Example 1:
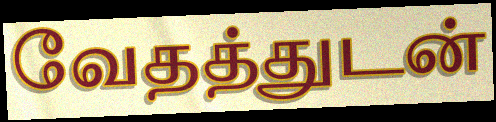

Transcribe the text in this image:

வேதத்துடன்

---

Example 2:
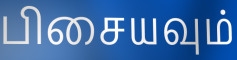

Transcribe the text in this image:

பிசையவும்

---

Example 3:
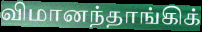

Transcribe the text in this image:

விமானந்தாங்கிக்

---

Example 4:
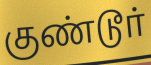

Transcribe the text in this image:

குண்டூர்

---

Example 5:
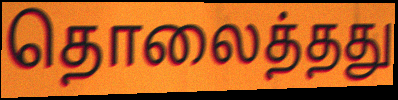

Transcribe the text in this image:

தொலைத்தது